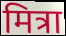
मित्रा